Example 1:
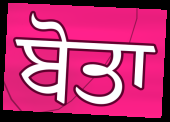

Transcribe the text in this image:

ਬੋਤਾ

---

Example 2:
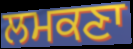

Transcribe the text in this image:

ਲਮਕਣਾ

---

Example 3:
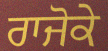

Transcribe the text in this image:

ਰਾਜੋਕੇ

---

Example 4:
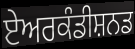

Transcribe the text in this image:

ਏਅਰਕੰਡੀਸ਼ਨਡ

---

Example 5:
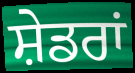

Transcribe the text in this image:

ਸ਼ੇਡਰਾਂ